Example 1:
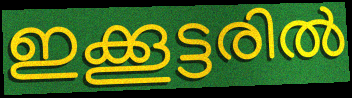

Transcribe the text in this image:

ഇക്കൂട്ടരിൽ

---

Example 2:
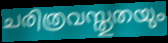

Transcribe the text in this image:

ചരിത്രവസ്തുതയും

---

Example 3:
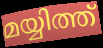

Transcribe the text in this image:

മയ്യിത്ത്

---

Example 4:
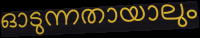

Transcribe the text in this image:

ഓടുന്നതായാലും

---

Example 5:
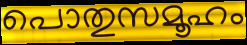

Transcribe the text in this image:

പൊതുസമൂഹം